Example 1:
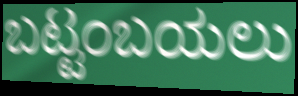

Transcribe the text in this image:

ಬಟ್ಟಂಬಯಲು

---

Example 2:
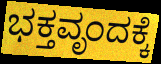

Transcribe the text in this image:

ಭಕ್ತವೃಂದಕ್ಕೆ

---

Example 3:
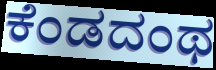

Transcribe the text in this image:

ಕೆಂಡದಂಥ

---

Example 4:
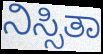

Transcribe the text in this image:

ನಿಸ್ಸಿತಾ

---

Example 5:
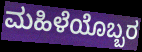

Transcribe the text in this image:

ಮಹಿಳೆಯೊಬ್ಬರ